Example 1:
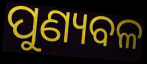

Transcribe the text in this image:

ପୁଣ୍ୟବଳ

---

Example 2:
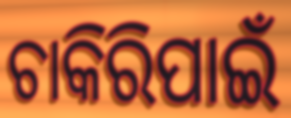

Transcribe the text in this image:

ଚାକିରିପାଇଁ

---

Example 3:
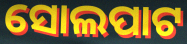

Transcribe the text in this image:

ସୋଲପାଟ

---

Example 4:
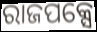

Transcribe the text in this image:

ରାଜପକ୍ସେ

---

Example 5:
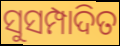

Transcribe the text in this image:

ସୁସମ୍ପାଦିତ